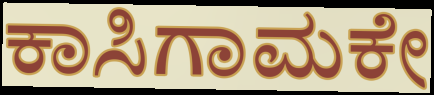
ಕಾಸಿಗಾಮಕೇ